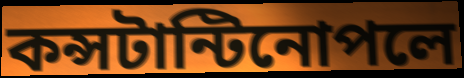
কন্সটান্টিনোপলে